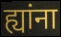
ह्यांना